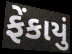
ફેંકાયું